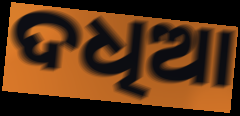
ଦଧିଆ